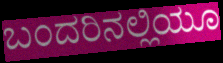
ಬಂದರಿನಲ್ಲಿಯೂ